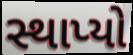
સ્થાપ્યો